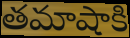
తమాషాకి